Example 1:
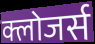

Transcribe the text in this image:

क्लोजर्स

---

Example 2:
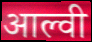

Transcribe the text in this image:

आल्वी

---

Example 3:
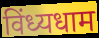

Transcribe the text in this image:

विंध्यधाम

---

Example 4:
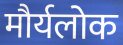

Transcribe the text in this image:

मौर्यलोक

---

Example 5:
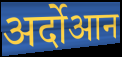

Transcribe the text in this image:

अर्दोआन